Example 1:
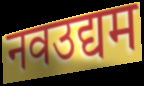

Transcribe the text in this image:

नवउद्यम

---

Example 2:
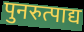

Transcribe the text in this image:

पुनरुत्पाद्य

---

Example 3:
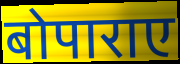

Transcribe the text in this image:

बोपाराए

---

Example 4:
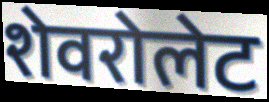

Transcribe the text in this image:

शेवरोलेट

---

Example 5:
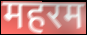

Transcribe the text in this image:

महरम